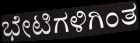
ಭೇಟಿಗಳಿಗಿಂತ